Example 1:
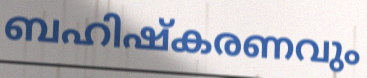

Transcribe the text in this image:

ബഹിഷ്കരണവും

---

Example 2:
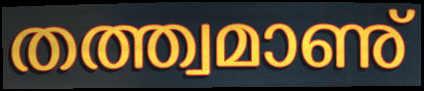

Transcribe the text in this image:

തത്ത്വമാണു്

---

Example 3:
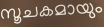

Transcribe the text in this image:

സൂചകമായും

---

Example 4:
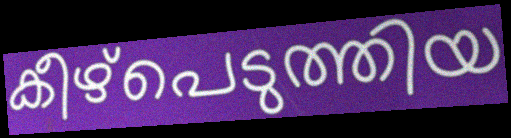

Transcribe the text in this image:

കീഴ്പെടുത്തിയ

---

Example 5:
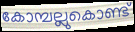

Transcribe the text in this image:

കോമ്പല്ലുകൊണ്ട്